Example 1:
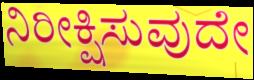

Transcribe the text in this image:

ನಿರೀಕ್ಷಿಸುವುದೇ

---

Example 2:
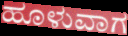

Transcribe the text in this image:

ಹೂಳುವಾಗ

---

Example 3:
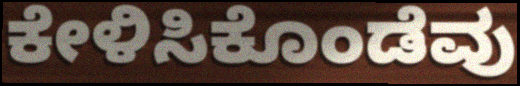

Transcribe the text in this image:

ಕೇಳಿಸಿಕೊಂಡೆವು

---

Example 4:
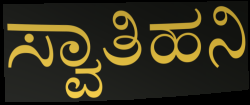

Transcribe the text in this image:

ಸ್ವಾತಿಹನಿ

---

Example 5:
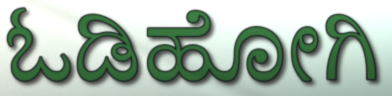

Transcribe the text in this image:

ಓಡಿಹೋಗಿ